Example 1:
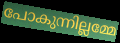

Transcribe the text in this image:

പോകുന്നില്ലമ്മേ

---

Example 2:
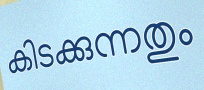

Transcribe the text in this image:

കിടക്കുന്നതും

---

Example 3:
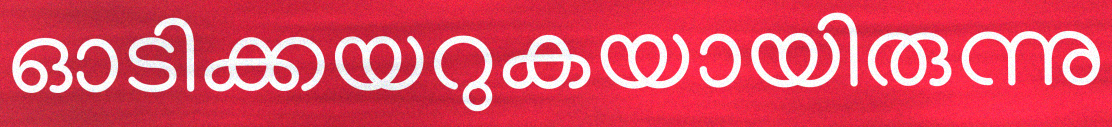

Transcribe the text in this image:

ഓടിക്കയറുകയായിരുന്നു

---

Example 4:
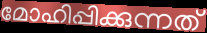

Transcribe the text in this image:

മോഹിപ്പിക്കുന്നത്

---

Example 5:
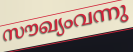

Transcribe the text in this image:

സൗഖ്യംവന്നു